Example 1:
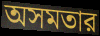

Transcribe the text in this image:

অসমতার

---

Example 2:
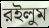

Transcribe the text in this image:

রইলুম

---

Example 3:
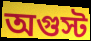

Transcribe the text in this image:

অগুস্ট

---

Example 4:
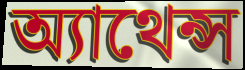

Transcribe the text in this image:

অ্যাথেন্স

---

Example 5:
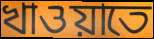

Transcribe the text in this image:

খাওয়াতে